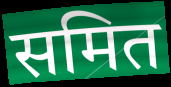
समित